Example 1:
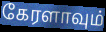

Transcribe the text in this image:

கேரளாவும்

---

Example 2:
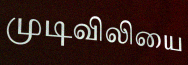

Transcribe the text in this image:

முடிவிலியை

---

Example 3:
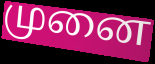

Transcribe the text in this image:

முனை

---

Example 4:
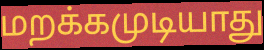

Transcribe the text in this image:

மறக்கமுடியாது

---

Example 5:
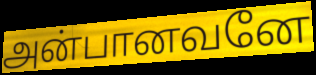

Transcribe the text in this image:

அன்பானவனே